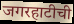
जगरहाटीची